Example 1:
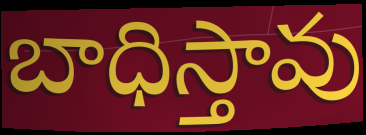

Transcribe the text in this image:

బాధిస్తావు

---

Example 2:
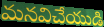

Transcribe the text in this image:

మనవిచేయుడి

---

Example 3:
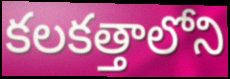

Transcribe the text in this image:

కలకత్తాలోని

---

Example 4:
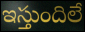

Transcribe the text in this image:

ఇస్తుందిలే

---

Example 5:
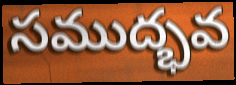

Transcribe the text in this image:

సముద్భవ